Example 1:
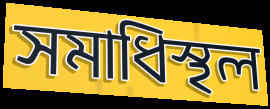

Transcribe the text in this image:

সমাধিস্থল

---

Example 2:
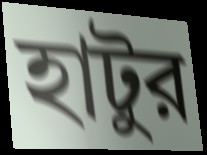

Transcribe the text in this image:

হাটুর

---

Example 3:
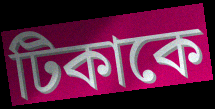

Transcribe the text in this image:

টিকাকে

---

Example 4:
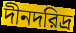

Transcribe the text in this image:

দীনদরিদ্র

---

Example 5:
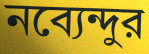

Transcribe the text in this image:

নব্যেন্দুর